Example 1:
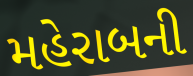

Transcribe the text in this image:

મહેરાબની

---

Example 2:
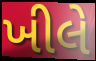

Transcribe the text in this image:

ખીલે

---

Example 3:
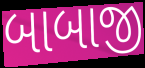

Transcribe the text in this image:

બાબાજી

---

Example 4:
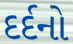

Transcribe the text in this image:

દર્દનો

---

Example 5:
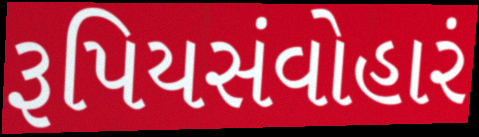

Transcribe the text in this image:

રૂપિયસંવોહારં